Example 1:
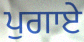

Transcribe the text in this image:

ਪੁਗਾਏ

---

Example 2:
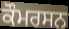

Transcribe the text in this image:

ਕੌਮਰਸਨ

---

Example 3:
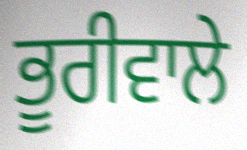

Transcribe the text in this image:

ਭੂਰੀਵਾਲੇ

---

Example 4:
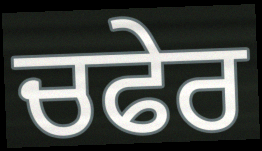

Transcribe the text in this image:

ਚਫੇਰ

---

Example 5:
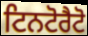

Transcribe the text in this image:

ਟਿਨਟੋਰੈਟੋ